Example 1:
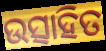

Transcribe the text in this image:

ଉତ୍ସାହିତ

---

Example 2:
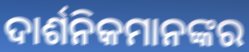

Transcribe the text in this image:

ଦାର୍ଶନିକମାନଙ୍କର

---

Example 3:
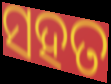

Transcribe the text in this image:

ସହତ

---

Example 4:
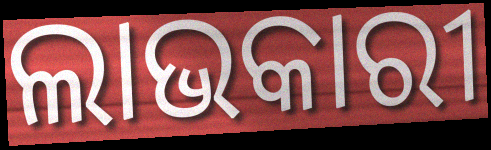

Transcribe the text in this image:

ଲାଭକାରୀ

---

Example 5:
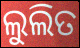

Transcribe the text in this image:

ଲୁଲିତ